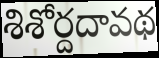
శిశోర్దదావథ